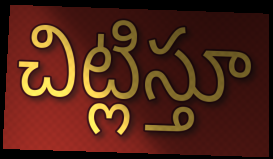
చిట్లిస్తూ